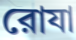
রোযা